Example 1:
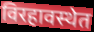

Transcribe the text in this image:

विरहावस्थेत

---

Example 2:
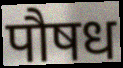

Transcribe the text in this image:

पौषध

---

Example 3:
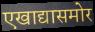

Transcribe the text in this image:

एखाद्यासमोर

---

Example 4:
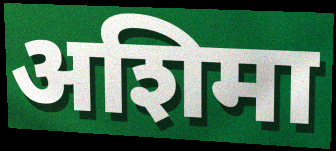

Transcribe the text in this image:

अशिमा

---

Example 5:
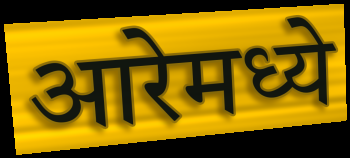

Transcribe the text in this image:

आरेमध्ये